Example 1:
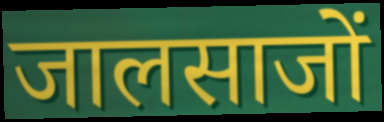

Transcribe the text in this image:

जालसाजों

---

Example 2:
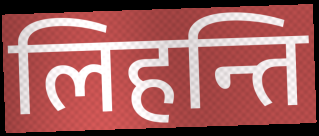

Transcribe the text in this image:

लिहन्ति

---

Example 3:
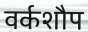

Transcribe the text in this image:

वर्कशौप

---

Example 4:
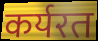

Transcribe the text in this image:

कर्यरत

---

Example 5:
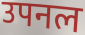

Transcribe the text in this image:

उपनल